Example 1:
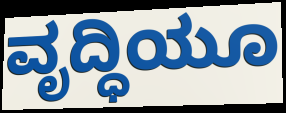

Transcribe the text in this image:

ವೃದ್ಧಿಯೂ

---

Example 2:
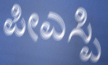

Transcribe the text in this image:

ಪೀಎಸ್ಪಿ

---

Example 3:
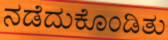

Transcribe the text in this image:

ನಡೆದುಕೊಂಡಿತು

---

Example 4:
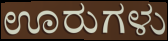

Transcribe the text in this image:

ಊರುಗಳು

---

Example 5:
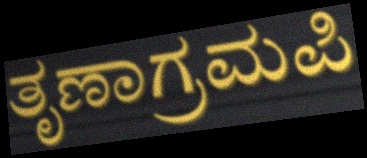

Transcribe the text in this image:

ತೃಣಾಗ್ರಮಪಿ